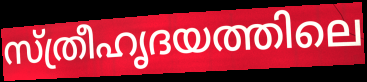
സ്ത്രീഹൃദയത്തിലെ